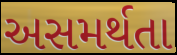
અસમર્થતા